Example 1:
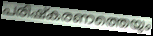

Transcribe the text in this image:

പരിഷ്കരണത്തെയും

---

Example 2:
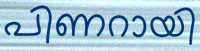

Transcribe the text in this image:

പിണറായി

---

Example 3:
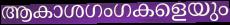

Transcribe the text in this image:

ആകാശഗംഗകളെയും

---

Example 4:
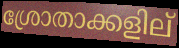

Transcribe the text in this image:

ശ്രോതാക്കളില്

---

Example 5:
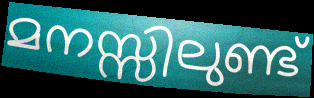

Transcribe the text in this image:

മനസ്സിലുണ്ട്